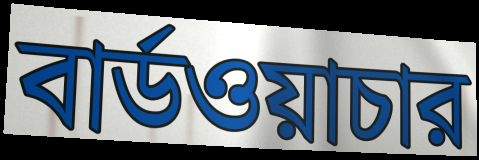
বার্ডওয়াচার